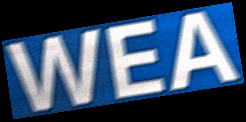
WEA